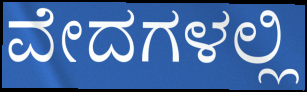
ವೇದಗಳಲ್ಲಿ